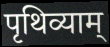
पृथिव्याम्